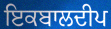
ਇਕਬਾਲਦੀਪ